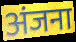
अंजना